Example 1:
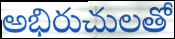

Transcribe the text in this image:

అభిరుచులతో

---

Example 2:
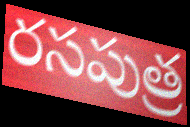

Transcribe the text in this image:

రసపుత్ర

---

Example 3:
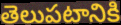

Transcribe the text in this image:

తెలుపటానికి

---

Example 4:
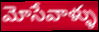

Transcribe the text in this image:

మోసేవాళ్ళు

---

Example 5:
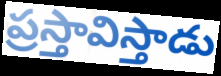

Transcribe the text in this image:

ప్రస్తావిస్తాడు